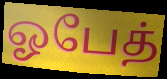
ஓபேத்